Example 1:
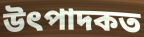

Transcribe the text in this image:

উৎপাদকত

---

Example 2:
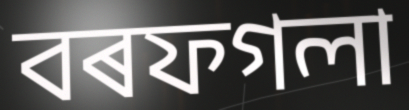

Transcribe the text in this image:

বৰফগলা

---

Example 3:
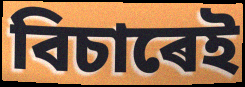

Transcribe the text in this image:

বিচাৰেই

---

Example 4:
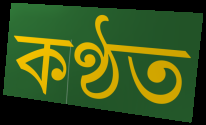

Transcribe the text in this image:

কণ্ঠত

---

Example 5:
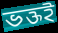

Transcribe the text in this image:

ভক্তই